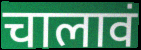
चालावं